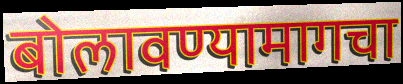
बोलावण्यामागचा